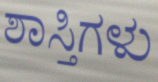
ಶಾಸ್ತಿಗಳು